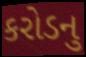
કરોડનુ